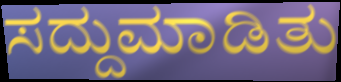
ಸದ್ದುಮಾಡಿತು